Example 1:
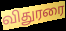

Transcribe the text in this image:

விதுரரை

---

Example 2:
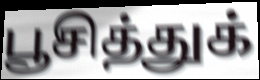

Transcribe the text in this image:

பூசித்துக்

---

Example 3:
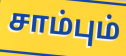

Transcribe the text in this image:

சாம்பும்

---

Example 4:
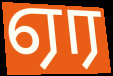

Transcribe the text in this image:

ஏர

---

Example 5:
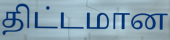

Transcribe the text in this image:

திட்டமான